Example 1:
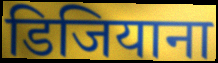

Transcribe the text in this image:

डिजियाना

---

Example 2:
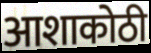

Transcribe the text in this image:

आशाकोठी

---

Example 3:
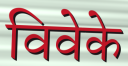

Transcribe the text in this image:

विवेके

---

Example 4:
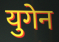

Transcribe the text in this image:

युगेन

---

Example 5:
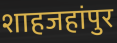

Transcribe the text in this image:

शाहजहांपुर